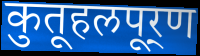
कुतूहलपूर्ण